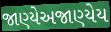
જાણ્યેઅજાણ્યેય